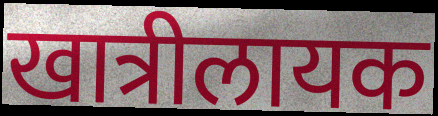
खात्रीलायक